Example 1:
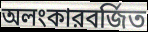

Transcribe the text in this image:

অলংকারবর্জিত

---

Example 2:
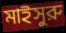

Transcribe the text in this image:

মাইসুরু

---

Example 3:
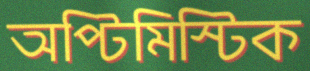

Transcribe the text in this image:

অপ্টিমিস্টিক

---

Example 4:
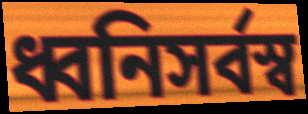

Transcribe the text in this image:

ধ্বনিসর্বস্ব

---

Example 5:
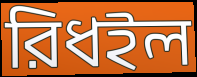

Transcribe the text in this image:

রিধইল